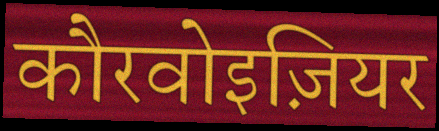
कौरवोइज़ियर